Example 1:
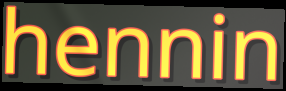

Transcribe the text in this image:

hennin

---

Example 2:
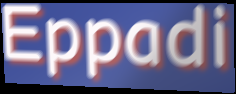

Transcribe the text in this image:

Eppadi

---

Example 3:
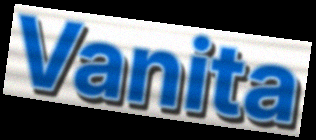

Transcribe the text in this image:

Vanita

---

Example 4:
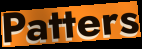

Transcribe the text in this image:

Patters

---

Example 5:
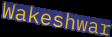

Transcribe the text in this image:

Wakeshwar